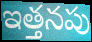
ఇత్తనపు